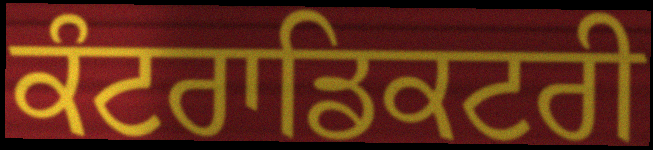
ਕੰਟਰਾਡਿਕਟਰੀ